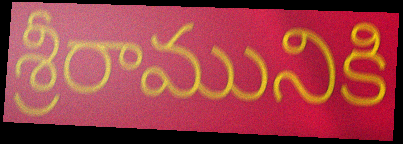
శ్రీరామునికి